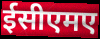
ईसीएमए